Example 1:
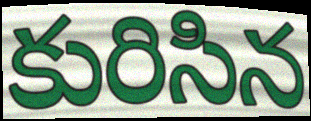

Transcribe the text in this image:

కురిసిన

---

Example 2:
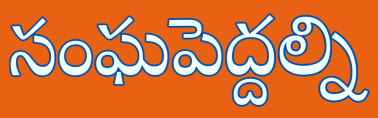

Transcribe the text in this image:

సంఘపెద్దల్ని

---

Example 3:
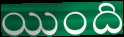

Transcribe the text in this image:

యింది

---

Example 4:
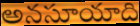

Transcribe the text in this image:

అనసూయాది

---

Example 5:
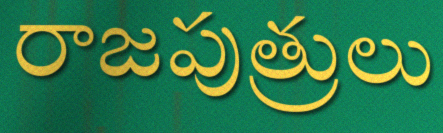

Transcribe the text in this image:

రాజపుత్రులు